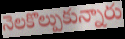
నెలకొల్పుకున్నారు